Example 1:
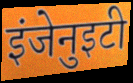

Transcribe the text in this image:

इंजेनुइटी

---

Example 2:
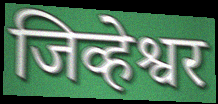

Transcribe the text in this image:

जिव्हेश्वर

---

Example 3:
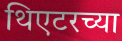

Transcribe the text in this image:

थिएटरच्या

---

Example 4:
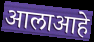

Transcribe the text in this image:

आलाआहे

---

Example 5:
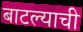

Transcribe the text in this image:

बाटल्याची